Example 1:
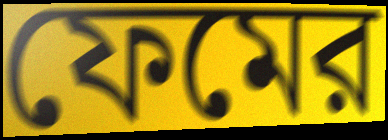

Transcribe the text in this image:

ফেমের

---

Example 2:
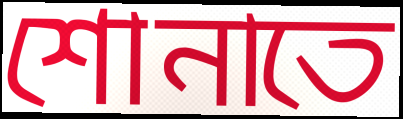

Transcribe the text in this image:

শোনাতে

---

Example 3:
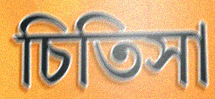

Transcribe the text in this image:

চিতিসা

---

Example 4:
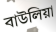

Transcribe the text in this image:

বাউলিয়া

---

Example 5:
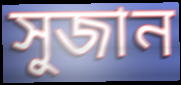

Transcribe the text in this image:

সুজান